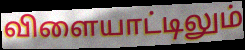
விளையாட்டிலும்